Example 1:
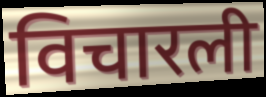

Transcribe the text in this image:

विचारली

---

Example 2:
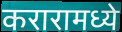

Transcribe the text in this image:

करारामध्ये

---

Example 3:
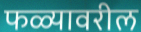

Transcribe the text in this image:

फळ्यावरील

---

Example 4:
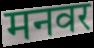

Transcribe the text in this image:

मनवर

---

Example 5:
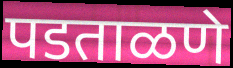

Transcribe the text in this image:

पडताळणे